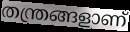
തന്ത്രങ്ങളാണ്